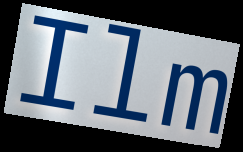
Ilm